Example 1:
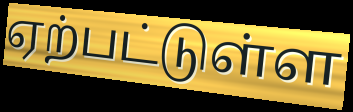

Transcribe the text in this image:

ஏற்பட்டுள்ள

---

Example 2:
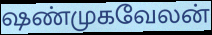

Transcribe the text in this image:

ஷண்முகவேலன்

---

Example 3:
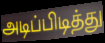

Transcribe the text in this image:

அடிப்பிடித்து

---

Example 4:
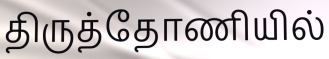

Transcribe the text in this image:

திருத்தோணியில்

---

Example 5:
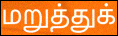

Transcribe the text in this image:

மறுத்துக்